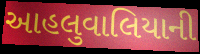
આહલુવાલિયાની